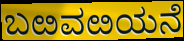
ಬೞವೞಯನೆ